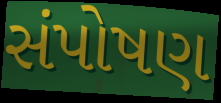
સંપોષણ